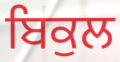
ਬਿਕੁਲ